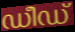
ഡീഡ്